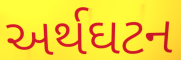
અર્થઘટન